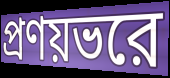
প্রণয়ভরে